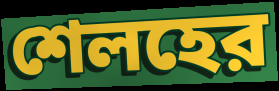
শেলহের